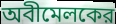
অবীমেলকের